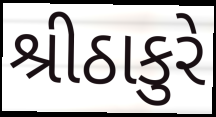
શ્રીઠાકુરે